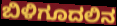
ಬಿಳಿಗೂದಲಿನ